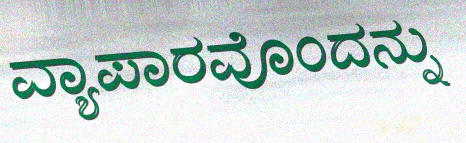
ವ್ಯಾಪಾರವೊಂದನ್ನು